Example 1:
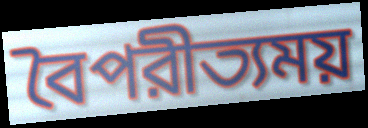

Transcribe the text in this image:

বৈপরীত্যময়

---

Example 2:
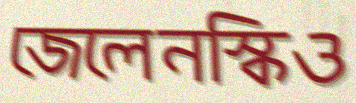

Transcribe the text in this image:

জেলেনস্কিও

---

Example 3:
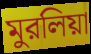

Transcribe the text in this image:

মুরলিয়া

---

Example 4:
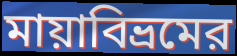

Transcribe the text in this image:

মায়াবিভ্রমের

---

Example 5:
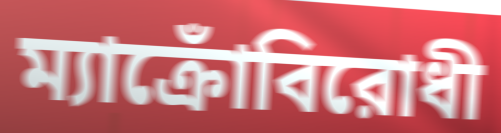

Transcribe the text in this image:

ম্যাক্রোঁবিরোধী